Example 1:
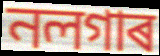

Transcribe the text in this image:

নলগাৰ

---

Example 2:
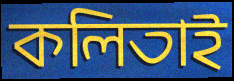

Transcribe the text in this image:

কলিতাই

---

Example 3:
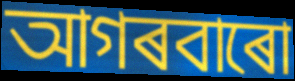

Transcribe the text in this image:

আগৰবাৰো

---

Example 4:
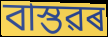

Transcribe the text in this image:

বাস্তৱৰ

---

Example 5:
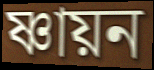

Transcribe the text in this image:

ষ্ণায়ন